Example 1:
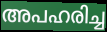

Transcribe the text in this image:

അപഹരിച്ച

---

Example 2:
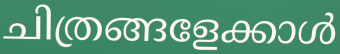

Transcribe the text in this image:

ചിത്രങ്ങളേക്കാൾ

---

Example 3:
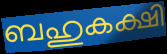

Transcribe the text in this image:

ബഹുകക്ഷി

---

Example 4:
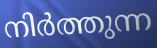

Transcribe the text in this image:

നിർത്തുന്ന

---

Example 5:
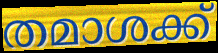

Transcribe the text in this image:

തമാശക്ക്